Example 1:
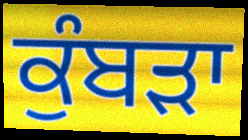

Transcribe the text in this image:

ਕੁੰਬੜਾ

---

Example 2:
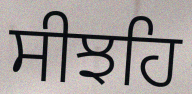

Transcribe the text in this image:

ਸੀਝਹਿ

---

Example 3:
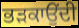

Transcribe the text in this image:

ਭੜਕਾਉਂਦੀ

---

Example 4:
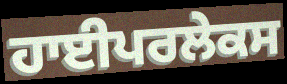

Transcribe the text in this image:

ਹਾਈਪਰਲੇਕਸ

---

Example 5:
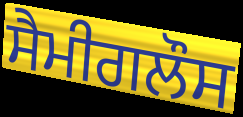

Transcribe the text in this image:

ਸੈਮੀਗਲੌਸ